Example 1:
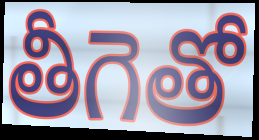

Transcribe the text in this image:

తీగెతో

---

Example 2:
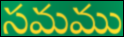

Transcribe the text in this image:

సమము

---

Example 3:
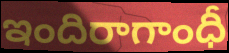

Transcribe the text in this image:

ఇందిరాగాంధీ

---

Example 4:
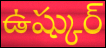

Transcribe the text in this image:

ఉష్కుర్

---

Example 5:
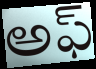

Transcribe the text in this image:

అఫ్